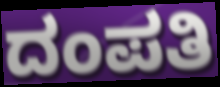
ದಂಪತಿ